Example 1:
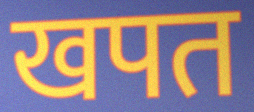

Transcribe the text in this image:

खपत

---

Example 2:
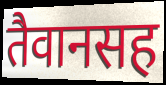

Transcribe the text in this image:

तैवानसह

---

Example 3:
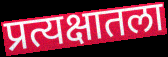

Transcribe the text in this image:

प्रत्यक्षातला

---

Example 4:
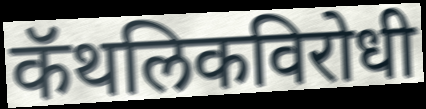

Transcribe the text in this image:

कॅथलिकविरोधी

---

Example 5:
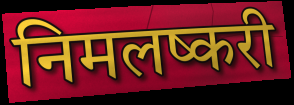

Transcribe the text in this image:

निमलष्करी